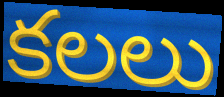
కలలు